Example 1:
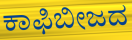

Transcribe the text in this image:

ಕಾಫಿಬೀಜದ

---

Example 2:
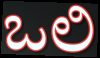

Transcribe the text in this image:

ಒಲಿ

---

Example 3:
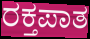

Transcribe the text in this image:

ರಕ್ತಪಾತ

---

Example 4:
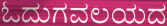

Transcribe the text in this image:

ಓದುಗವಲಯದ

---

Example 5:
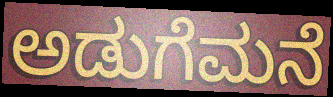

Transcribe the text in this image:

ಅಡುಗೆಮನೆ